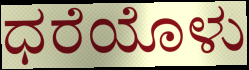
ಧರೆಯೊಳು